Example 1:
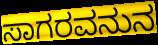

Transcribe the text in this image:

ಸಾಗರವನುನ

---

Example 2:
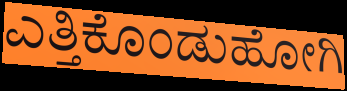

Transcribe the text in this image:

ಎತ್ತಿಕೊಂಡುಹೋಗಿ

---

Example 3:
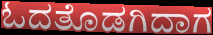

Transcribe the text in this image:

ಓದತೊಡಗಿದಾಗ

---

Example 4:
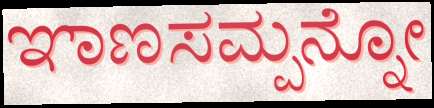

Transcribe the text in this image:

ಞಾಣಸಮ್ಪನ್ನೋ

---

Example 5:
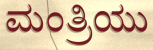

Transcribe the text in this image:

ಮಂತ್ರಿಯು